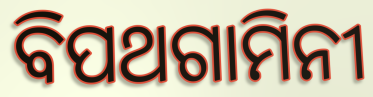
ବିପଥଗାମିନୀ